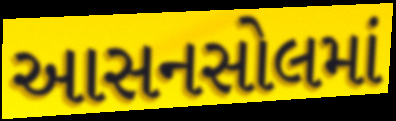
આસનસોલમાં